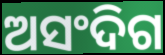
ଅସଂଦିଗ